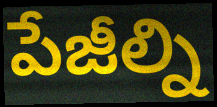
పేజీల్ని